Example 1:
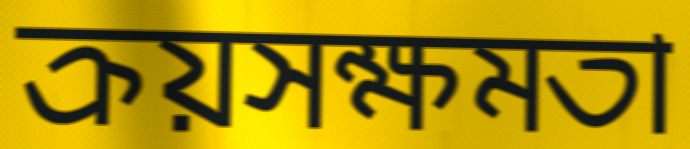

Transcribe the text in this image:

ক্রয়সক্ষমতা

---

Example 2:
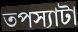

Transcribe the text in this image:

তপস্যাটা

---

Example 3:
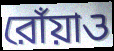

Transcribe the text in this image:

রোঁয়াও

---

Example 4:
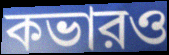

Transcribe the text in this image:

কভারও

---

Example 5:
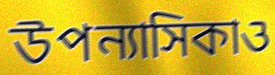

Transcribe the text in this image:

উপন্যাসিকাও